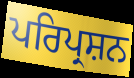
ਪਰਿਪ੍ਰਸ਼ਨ